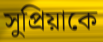
সুপ্রিয়াকে